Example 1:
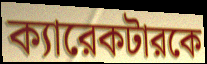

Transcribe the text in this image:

ক্যারেকটারকে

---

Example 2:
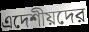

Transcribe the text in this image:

এদেশীয়দের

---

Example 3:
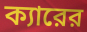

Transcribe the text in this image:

ক্যারের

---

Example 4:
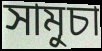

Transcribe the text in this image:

সামুচা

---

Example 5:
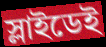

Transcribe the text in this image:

স্লাইডেই